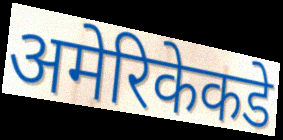
अमेरिकेकडे